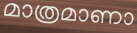
മാത്രമാണാ